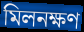
মিলনক্ষণ